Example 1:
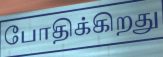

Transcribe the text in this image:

போதிக்கிறது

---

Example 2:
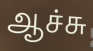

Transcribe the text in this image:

ஆச்சு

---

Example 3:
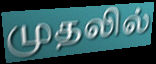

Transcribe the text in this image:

முதலில்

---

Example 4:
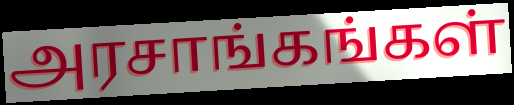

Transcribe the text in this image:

அரசாங்கங்கள்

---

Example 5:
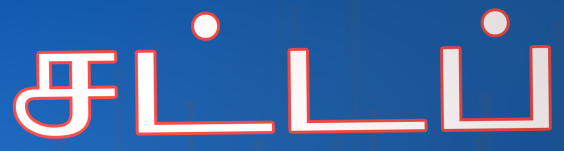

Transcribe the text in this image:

சட்டப்